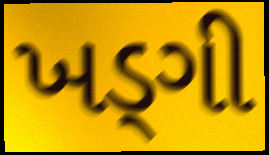
ખડ્ગી